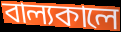
বাল্যকালে